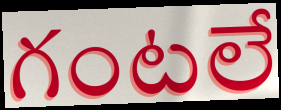
గంటలే